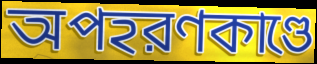
অপহরণকাণ্ডে